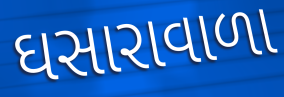
ઘસારાવાળા